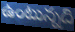
ఉంటున్నది